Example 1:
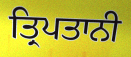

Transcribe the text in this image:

ਤ੍ਰਿਪਤਾਨੀ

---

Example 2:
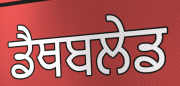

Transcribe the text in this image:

ਡੈਥਬਲੇਡ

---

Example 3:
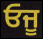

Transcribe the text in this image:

ਓਜੂ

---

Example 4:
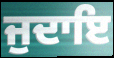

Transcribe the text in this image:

ਜੁਦਾਇ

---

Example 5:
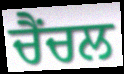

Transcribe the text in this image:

ਚੈਂਚਲ